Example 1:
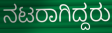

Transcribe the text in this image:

ನಟರಾಗಿದ್ದರು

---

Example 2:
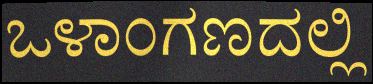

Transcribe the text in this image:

ಒಳಾಂಗಣದಲ್ಲಿ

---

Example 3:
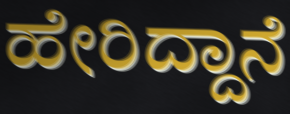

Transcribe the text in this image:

ಹೇರಿದ್ದಾನೆ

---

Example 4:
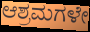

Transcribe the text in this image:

ಆಶ್ರಮಗಳೇ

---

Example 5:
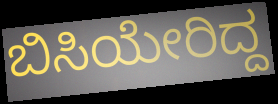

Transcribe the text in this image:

ಬಿಸಿಯೇರಿದ್ದ